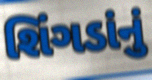
શિંગડાંનું